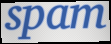
spam